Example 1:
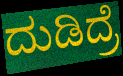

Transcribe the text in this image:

ದುಡಿದ್ರೆ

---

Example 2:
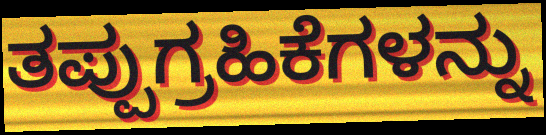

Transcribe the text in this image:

ತಪ್ಪುಗ್ರಹಿಕೆಗಳನ್ನು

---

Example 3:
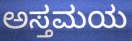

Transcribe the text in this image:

ಅಸ್ತಮಯ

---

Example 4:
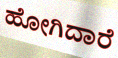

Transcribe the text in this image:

ಹೋಗಿದಾರೆ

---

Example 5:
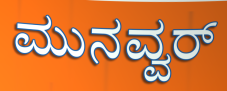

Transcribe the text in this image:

ಮುನವ್ವರ್